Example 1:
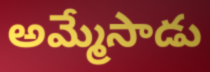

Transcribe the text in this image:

అమ్మేసాడు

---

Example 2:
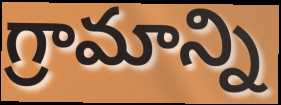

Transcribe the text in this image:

గ్రామాన్ని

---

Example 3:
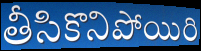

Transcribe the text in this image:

తీసికొనిపోయిరి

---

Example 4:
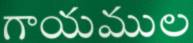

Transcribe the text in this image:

గాయముల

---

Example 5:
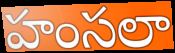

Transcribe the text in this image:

హంసలా